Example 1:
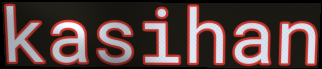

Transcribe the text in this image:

kasihan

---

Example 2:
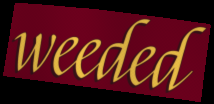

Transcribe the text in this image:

weeded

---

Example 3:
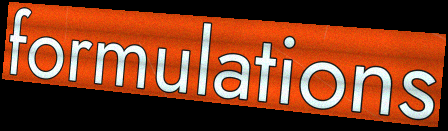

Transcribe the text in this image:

formulations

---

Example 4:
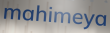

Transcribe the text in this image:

mahimeya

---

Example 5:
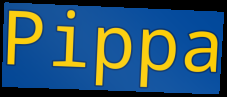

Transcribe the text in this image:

Pippa